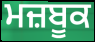
ਮਜ਼ਬੂਕ